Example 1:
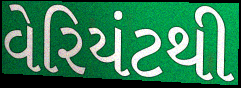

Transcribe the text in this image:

વેરિયંટથી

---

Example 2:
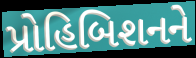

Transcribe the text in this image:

પ્રોહિબિશનને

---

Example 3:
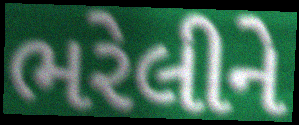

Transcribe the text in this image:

ભરેલીને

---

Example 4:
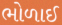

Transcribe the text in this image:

ભોળાઈ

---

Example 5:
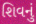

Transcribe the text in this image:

શિવનું